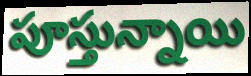
పూస్తున్నాయి